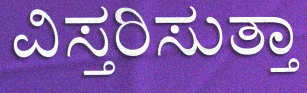
ವಿಸ್ತರಿಸುತ್ತಾ